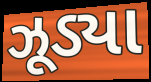
ઝૂડ્યા